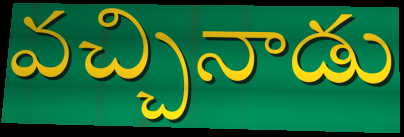
వచ్చినాడు